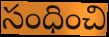
సంధించి